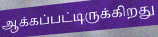
ஆக்கப்பட்டிருக்கிறது